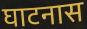
घाटनास